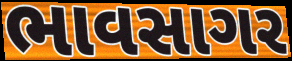
ભાવસાગર